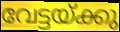
വേട്ടയ്ക്കു